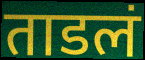
ताडलं